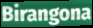
Birangona